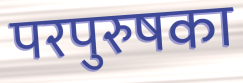
परपुरुषका